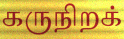
கருநிறக்